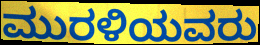
ಮುರಳಿಯವರು